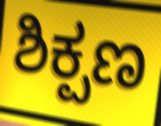
ಶಿಕ್ಪಣ